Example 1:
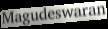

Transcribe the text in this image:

Magudeswaran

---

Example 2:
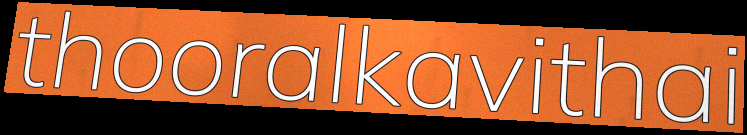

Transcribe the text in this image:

thooralkavithai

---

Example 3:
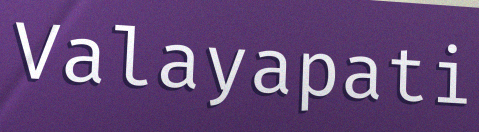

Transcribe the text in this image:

Valayapati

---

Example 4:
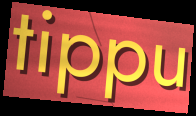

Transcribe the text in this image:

tippu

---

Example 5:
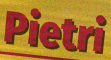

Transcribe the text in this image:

Pietri